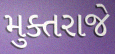
મુક્તરાજે